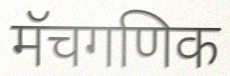
मॅचगणिक